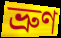
ভ্ৰুণ